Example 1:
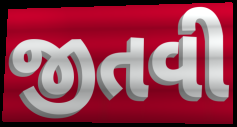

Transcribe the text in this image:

જીતવી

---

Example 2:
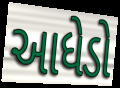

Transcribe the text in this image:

આધેડો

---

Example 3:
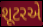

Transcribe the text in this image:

શૂટરએ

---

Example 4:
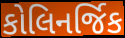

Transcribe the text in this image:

કોલિનર્જિક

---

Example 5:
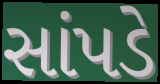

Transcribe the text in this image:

સાંપડે